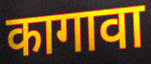
कागावा